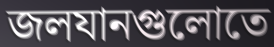
জলযানগুলোতে